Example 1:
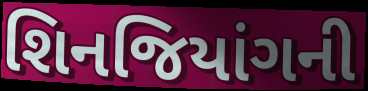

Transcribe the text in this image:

શિનજિયાંગની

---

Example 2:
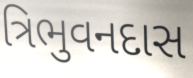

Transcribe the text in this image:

ત્રિભુવનદાસ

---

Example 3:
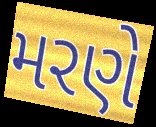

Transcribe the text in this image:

મરણે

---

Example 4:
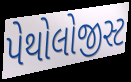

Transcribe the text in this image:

પેથોલોજીસ્ટ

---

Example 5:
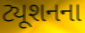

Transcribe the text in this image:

ટ્યૂશનના